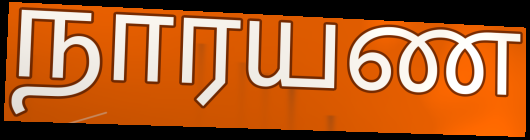
நாரயண